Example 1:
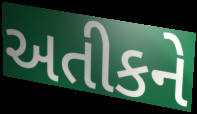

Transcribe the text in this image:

અતીકને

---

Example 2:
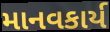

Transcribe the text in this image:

માનવકાર્ય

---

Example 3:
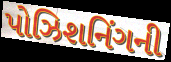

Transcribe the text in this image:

પોઝિશનિંગની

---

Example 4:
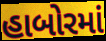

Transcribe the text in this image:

હાબોરમાં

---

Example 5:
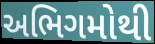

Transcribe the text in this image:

અભિગમોથી